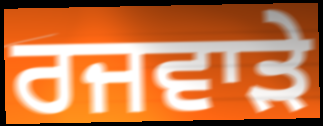
ਰਜਵਾੜੇ